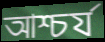
আশ্চর্য